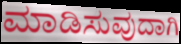
ಮಾಡಿಸುವುದಾಗಿ